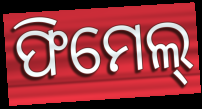
ଫିମେଲ୍